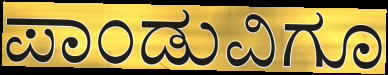
ಪಾಂಡುವಿಗೂ